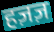
हज़ज़